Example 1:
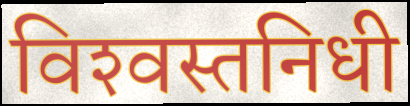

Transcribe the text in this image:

विश्वस्तनिधी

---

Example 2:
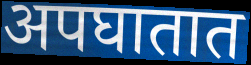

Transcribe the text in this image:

अपघातात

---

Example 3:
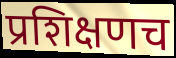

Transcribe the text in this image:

प्रशिक्षणच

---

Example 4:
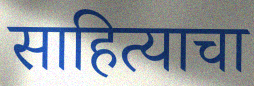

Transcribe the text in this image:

साहित्याचा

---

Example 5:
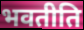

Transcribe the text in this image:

भवतीति